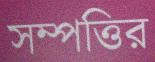
সম্পত্তির